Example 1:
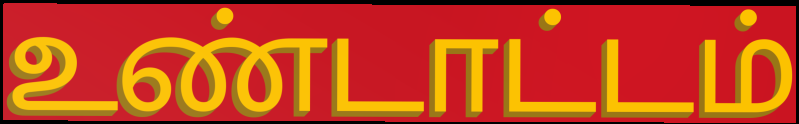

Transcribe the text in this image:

உண்டாட்டம்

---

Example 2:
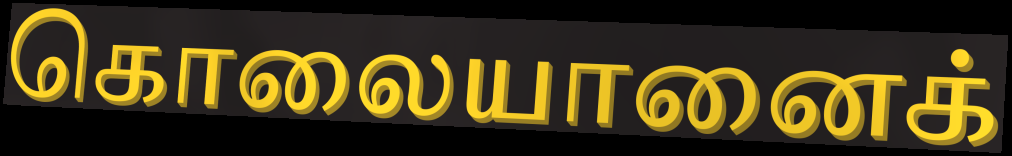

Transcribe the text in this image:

கொலையானைக்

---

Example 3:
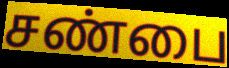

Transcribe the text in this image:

சண்பை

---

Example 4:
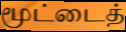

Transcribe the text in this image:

மூட்டைத்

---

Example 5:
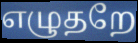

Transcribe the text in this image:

எழுதறே